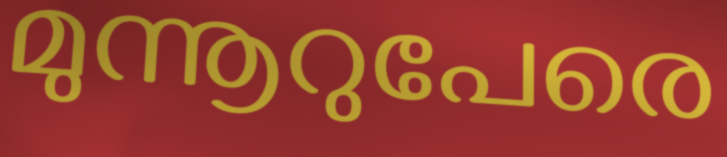
മുന്നൂറുപേരെ